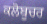
ਕਲੋਬੂਚਰ